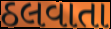
ઠલવાતા